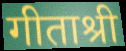
गीताश्री